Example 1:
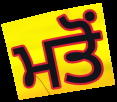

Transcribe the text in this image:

ਮਤੋਂ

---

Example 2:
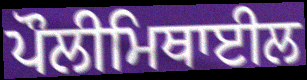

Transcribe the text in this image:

ਪੌਲੀਮਿਥਾਈਲ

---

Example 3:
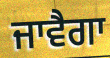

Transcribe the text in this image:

ਜਾਵੈਗਾ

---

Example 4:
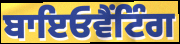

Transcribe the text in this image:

ਬਾਇਓਵੈਂਟਿੰਗ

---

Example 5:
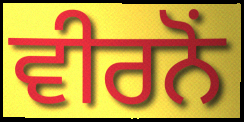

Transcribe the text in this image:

ਵੀਰਨੋਂ